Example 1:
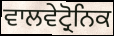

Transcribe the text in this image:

ਵਾਲਵੇਟ੍ਰੋਨਿਕ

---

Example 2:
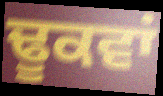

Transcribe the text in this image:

ਢੂਕਵਾਂ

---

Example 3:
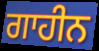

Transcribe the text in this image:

ਗਾਹੀਨ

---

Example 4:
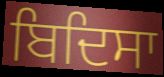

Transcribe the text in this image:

ਬਿਦਿਸਾ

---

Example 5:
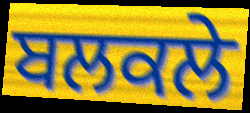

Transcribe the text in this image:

ਬਲਕਲੇ